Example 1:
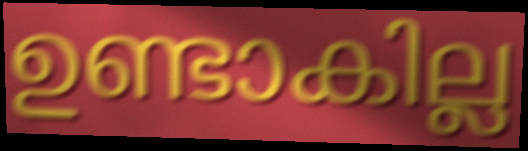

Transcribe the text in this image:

ഉണ്ടാകില്ല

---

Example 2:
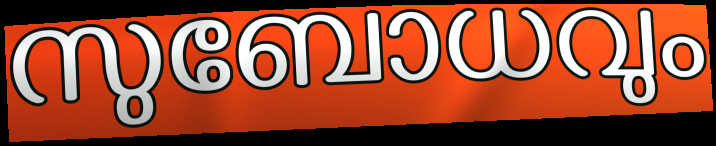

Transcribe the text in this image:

സുബോധവും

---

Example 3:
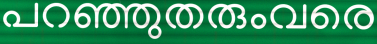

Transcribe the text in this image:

പറഞ്ഞുതരുംവരെ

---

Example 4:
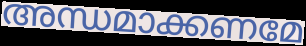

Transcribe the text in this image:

അന്ധമാക്കണമേ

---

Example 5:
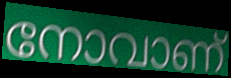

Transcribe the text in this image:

നോവാണ്